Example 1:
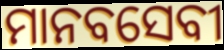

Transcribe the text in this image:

ମାନବସେବୀ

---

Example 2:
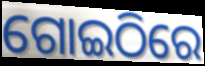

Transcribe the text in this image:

ଗୋଇଠିରେ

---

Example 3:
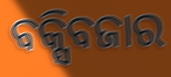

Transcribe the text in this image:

ବକ୍ସିବଜାର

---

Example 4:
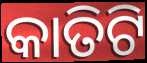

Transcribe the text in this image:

କାତିଟି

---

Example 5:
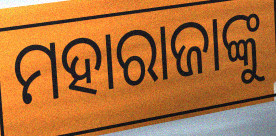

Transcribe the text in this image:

ମହାରାଜାଙ୍କୁ